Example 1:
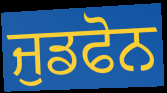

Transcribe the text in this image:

ਜੁਡਫੋਨ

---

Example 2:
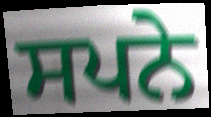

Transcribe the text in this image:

ਸਪਨੇ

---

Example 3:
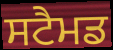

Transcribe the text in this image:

ਸਟੈਮਡ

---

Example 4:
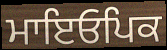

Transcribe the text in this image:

ਮਾਇਓਪਿਕ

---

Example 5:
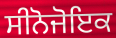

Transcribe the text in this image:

ਸੀਨੋਜੋਇਕ